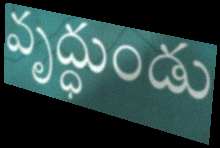
వృద్ధుండు